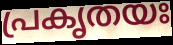
പ്രകൃതയഃ